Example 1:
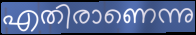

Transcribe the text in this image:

എതിരാണെന്നു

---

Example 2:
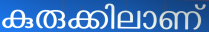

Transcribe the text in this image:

കുരുക്കിലാണ്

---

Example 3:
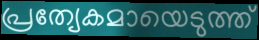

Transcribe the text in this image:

പ്രത്യേകമായെടുത്ത്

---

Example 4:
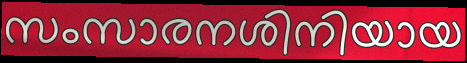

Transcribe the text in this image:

സംസാരനശിനിയായ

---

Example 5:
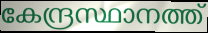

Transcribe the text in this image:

കേന്ദ്രസ്ഥാനത്ത്